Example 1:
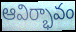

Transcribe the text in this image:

ఆవిర్భావం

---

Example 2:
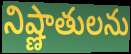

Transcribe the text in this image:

నిష్ణాతులను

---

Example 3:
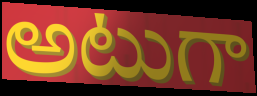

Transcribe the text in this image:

అటుగా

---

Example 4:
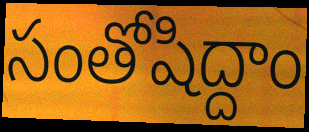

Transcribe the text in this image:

సంతోషిద్దాం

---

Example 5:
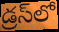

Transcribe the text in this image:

డ్రస్‌లో